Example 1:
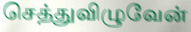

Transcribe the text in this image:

செத்துவிழுவேன்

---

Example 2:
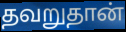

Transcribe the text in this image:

தவறுதான்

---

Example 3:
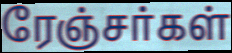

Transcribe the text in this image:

ரேஞ்சர்கள்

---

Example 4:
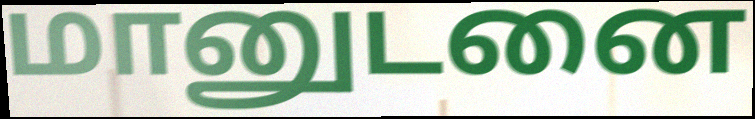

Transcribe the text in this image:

மானுடனை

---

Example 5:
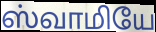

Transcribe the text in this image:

ஸ்வாமியே